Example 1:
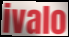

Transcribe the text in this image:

ivalo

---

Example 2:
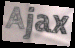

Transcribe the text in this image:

Ajax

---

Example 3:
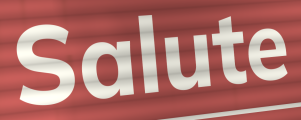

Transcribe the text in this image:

Salute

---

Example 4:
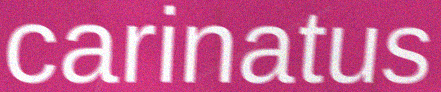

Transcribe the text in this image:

carinatus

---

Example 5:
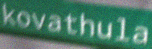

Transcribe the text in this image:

kovathula